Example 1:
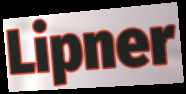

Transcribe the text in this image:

Lipner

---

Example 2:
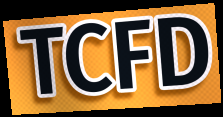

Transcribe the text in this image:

TCFD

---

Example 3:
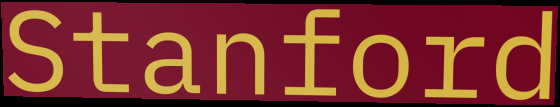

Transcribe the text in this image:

Stanford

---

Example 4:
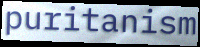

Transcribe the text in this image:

puritanism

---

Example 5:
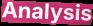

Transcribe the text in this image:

Analysis